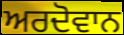
ਅਰਦੋਵਾਨ